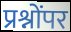
प्रश्नोंपर